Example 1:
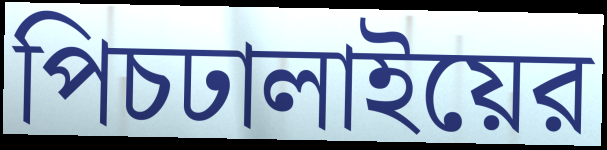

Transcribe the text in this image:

পিচঢালাইয়ের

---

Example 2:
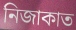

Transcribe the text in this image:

নিজাকাত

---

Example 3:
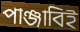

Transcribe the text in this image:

পাঞ্জাবিই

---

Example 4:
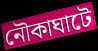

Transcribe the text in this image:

নৌকাঘাটে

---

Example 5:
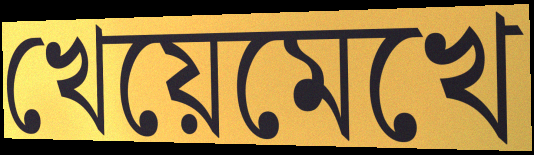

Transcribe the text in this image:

খেয়েমেখে